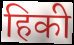
हिकी